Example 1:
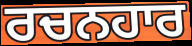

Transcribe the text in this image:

ਰਚਨਹਾਰ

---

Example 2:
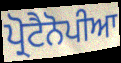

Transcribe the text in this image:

ਪ੍ਰੋਟੈਨੋਪੀਆ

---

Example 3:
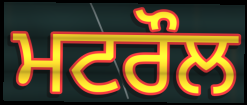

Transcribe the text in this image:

ਮਟਰੌਲ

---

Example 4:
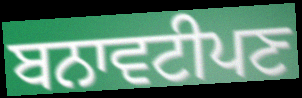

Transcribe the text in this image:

ਬਨਾਵਟੀਪਣ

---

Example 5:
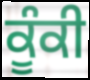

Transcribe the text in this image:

ਕੂੰਕੀ